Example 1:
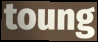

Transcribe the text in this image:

toung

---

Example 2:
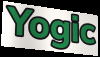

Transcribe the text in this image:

Yogic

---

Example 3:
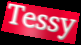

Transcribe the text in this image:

Tessy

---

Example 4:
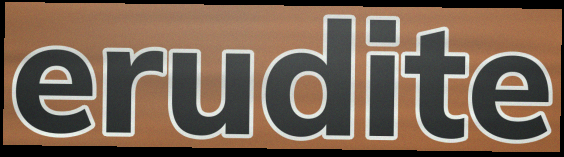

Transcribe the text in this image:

erudite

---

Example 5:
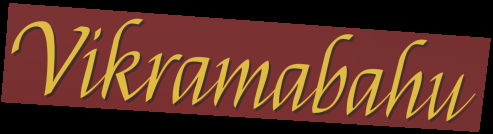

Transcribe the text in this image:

Vikramabahu